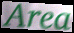
Area